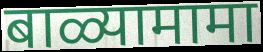
बाळ्यामामा